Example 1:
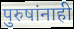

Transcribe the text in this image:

पुरुषांनाही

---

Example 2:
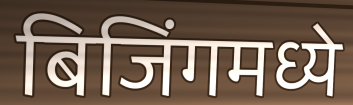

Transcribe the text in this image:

बिजिंगमध्ये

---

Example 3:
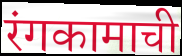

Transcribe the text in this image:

रंगकामाची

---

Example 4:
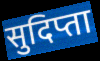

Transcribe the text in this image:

सुदिप्ता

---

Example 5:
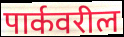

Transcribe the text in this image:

पार्कवरील